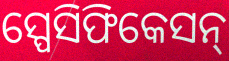
ସ୍ପେସିଫିକେସନ୍